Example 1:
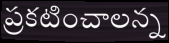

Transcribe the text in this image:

ప్రకటించాలన్న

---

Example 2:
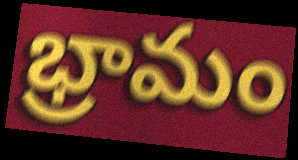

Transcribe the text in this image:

భ్రామం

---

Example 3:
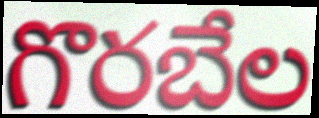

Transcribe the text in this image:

గొరబేల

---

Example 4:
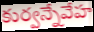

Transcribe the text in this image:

కుర్వన్నేవేహ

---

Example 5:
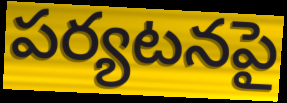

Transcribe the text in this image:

పర్యటనపై